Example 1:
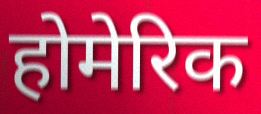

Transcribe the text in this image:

होमेरिक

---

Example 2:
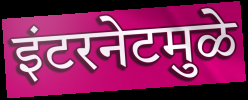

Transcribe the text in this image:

इंटरनेटमुळे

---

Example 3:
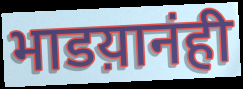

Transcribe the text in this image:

भाडय़ानंही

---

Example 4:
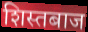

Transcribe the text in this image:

शिस्तबाज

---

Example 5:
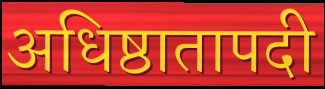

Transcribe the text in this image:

अधिष्ठातापदी